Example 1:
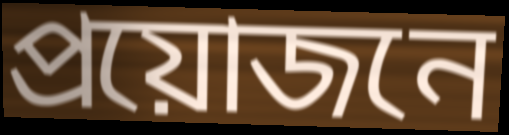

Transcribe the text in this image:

প্রয়োজনে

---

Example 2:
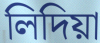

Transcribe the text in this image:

লিদিয়া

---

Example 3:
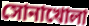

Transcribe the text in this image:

সোনাখোলা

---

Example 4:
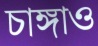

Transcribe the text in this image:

চাঙ্গাও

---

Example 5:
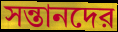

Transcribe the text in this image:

সন্তানদের